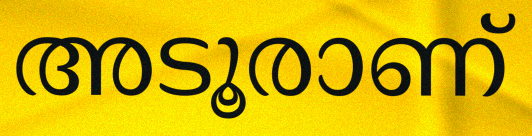
അടൂരാണ്